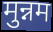
मुन्नम